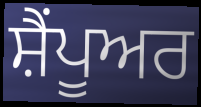
ਸ਼ੈਂਪੂਅਰ